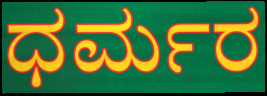
ಧರ್ಮರ